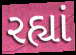
રહ્યાં